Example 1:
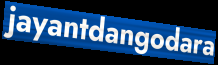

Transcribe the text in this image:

jayantdangodara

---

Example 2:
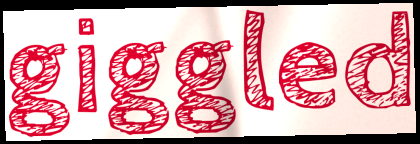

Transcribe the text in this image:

giggled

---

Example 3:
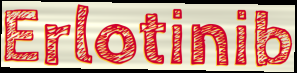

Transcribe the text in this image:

Erlotinib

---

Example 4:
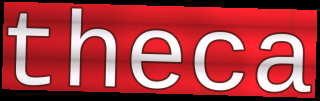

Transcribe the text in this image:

theca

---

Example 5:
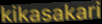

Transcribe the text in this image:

kikasakari